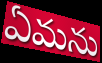
ఏమను